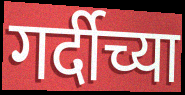
गर्दीच्या